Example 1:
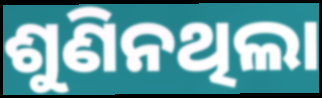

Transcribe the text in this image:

ଶୁଣିନଥିଲା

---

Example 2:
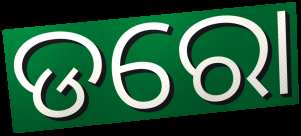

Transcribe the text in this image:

ଡରୋ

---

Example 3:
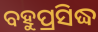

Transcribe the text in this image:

ବହୁପ୍ରସିଦ୍ଧ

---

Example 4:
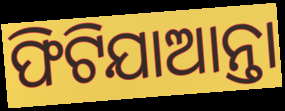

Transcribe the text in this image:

ଫିଟିଯାଆନ୍ତା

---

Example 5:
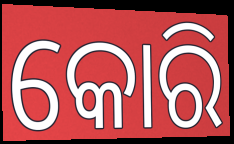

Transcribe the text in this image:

କୋରି